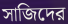
সাজিদের